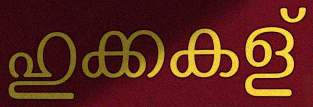
ഹുക്കകള്